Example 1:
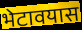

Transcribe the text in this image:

भेटावयास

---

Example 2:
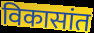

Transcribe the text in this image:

विकासांत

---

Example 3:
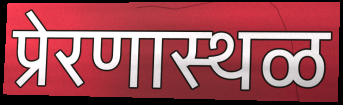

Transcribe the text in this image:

प्रेरणास्थळ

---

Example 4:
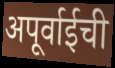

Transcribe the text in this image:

अपूर्वाईची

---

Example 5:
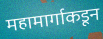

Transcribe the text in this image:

महामार्गाकडून